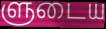
ளுடைய